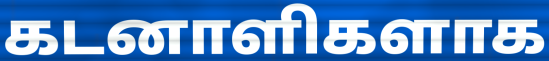
கடனாளிகளாக